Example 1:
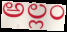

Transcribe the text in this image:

అల్లం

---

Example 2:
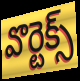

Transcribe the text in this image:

వొర్టెక్స్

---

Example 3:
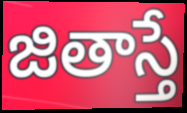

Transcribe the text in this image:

జితాస్తే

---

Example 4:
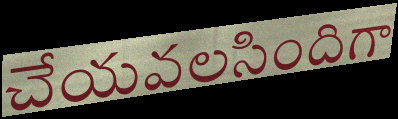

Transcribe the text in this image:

చేయవలసిందిగా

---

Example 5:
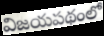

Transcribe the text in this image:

విజయపథంలో